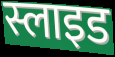
स्‍लाइड